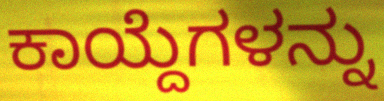
ಕಾಯ್ದೆಗಳನ್ನು